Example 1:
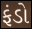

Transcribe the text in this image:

ફંડો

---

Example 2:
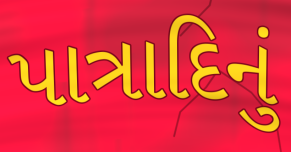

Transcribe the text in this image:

પાત્રાદિનું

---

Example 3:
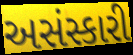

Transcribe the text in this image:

અસંસ્કારી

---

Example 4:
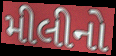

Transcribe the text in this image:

મીલીનો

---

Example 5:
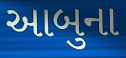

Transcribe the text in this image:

આબુના